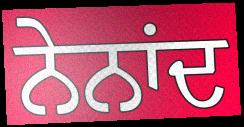
ਨੇਨਾਂਦ